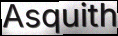
Asquith